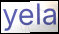
yela